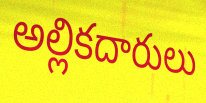
అల్లికదారులు